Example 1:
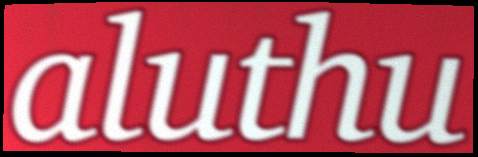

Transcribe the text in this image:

aluthu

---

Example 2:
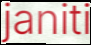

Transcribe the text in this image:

janiti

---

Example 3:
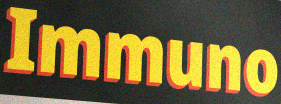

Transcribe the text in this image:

Immuno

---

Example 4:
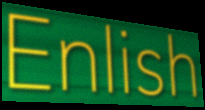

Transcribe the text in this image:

Enlish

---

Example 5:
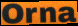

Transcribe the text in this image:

Orna